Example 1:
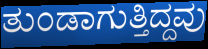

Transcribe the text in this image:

ತುಂಡಾಗುತ್ತಿದ್ದವು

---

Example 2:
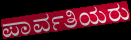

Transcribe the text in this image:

ಪಾರ್ವತಿಯರು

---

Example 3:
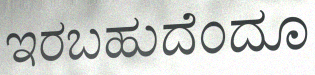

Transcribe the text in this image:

ಇರಬಹುದೆಂದೂ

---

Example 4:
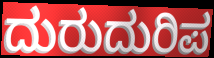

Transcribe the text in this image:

ದುರುದುರಿಪ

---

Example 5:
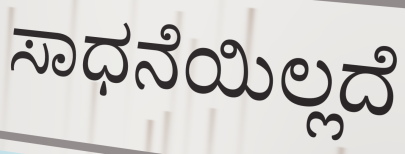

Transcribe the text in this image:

ಸಾಧನೆಯಿಲ್ಲದೆ